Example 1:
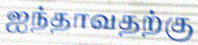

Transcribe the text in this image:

ஐந்தாவதற்கு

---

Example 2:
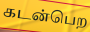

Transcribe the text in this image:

கடன்பெற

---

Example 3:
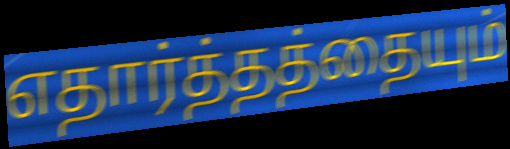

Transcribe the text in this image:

எதார்த்தத்தையும்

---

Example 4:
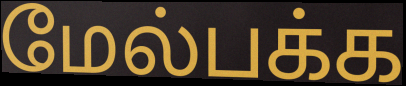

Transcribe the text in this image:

மேல்பக்க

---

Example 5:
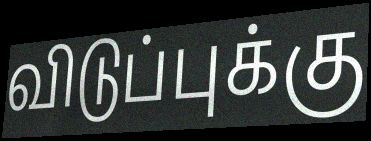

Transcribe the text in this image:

விடுப்புக்கு